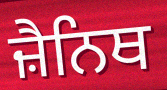
ਜ਼ੈਨਿਥ